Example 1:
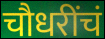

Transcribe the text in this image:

चौधरींचं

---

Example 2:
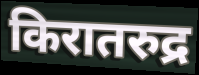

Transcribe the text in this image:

किरातरुद्र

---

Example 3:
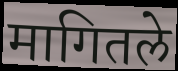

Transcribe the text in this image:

मागितले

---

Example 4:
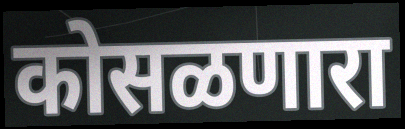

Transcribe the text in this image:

कोसळणारा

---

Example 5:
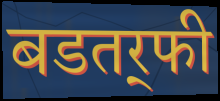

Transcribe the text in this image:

बडतर्फी